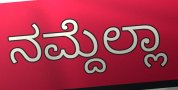
ನಮ್ದೆಲ್ಲಾ